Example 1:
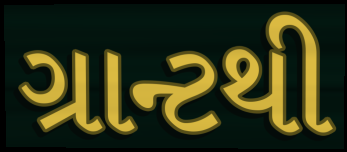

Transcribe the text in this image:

ગ્રાન્ટથી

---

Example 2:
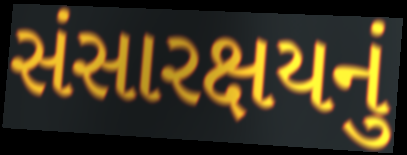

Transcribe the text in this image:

સંસારક્ષયનું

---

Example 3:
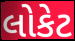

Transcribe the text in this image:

લોકેટ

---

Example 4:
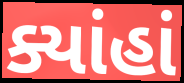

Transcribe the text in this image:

ક્યાંહાં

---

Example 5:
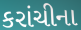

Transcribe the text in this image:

કરાંચીના